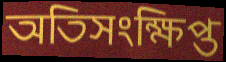
অতিসংক্ষিপ্ত